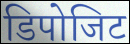
डिपोजिट